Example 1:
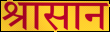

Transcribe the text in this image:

श्रासान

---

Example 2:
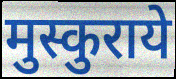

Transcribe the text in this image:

मुस्कुराये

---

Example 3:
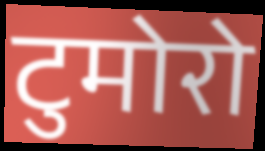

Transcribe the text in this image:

टुमोरो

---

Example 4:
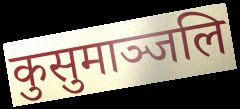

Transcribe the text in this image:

कुसुमाञ्जलि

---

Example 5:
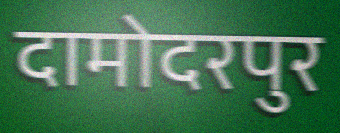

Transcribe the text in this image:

दामोदरपुर